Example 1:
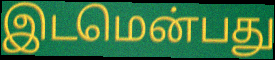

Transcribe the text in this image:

இடமென்பது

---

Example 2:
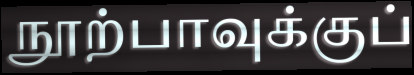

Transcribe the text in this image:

நூற்பாவுக்குப்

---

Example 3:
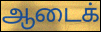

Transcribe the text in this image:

ஆடைக்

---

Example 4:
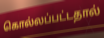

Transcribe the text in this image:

கொல்லப்பட்டதால்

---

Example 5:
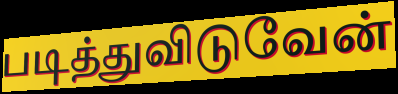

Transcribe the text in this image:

படித்துவிடுவேன்